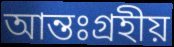
আন্তঃগ্রহীয়